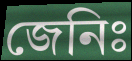
জেনিঃ